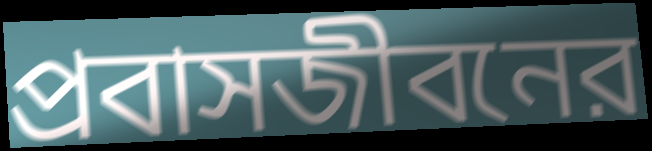
প্রবাসজীবনের